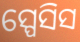
ସ୍ପେସିସ